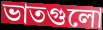
ভাতগুলো